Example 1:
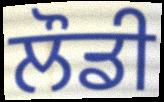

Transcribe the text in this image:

ਲੌਡੀ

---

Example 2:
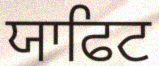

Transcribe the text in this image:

ਯਾਫਿਟ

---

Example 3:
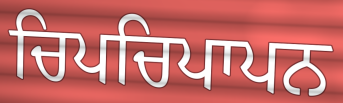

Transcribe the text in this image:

ਚਿਪਚਿਪਾਪਨ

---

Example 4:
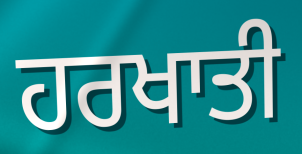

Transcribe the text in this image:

ਹਰਖਾਤੀ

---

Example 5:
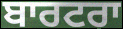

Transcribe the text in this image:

ਬਾਰਟਰਾ